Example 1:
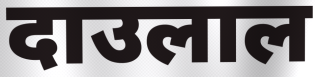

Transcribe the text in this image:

दाउलाल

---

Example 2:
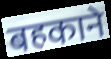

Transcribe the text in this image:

बहकाने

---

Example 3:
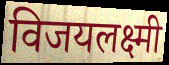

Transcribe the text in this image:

विजयलक्ष्मी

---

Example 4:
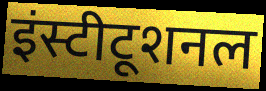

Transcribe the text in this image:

इंस्टीटूशनल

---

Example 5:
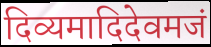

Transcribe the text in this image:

दिव्यमादिदेवमजं